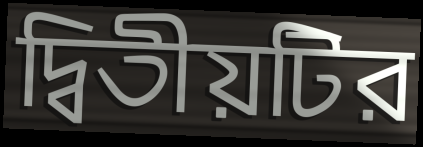
দ্বিতীয়টির